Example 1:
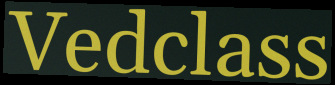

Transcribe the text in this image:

Vedclass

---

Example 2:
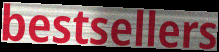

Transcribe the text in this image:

bestsellers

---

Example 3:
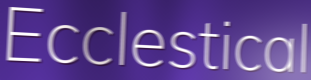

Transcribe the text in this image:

Ecclestical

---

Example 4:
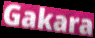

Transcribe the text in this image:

Gakara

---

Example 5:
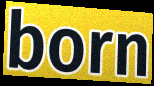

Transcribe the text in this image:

born